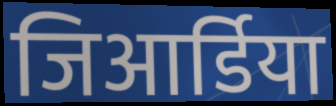
जिआर्डिया